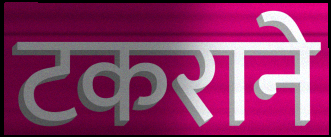
टकराने